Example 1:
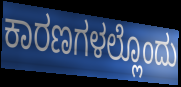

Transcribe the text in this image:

ಕಾರಣಗಳಲ್ಲೊಂದು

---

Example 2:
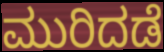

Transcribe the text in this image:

ಮುರಿದಡೆ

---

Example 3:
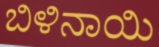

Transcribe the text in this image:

ಬಿಳಿನಾಯಿ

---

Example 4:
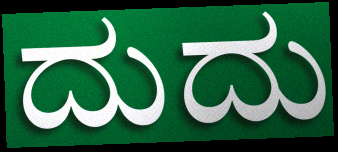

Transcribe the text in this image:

ದುದು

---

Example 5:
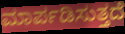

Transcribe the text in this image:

ಮಾರ್ಪಡಿಸುತ್ತದೆ